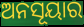
ଅନସୂୟାର